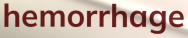
hemorrhage